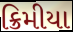
ક્રિમીયા